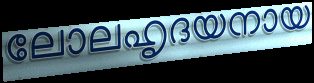
ലോലഹൃദയനായ